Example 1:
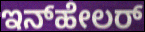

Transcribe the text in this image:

ಇನ್‌ಹೇಲರ್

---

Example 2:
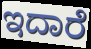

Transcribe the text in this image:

ಇದಾರೆ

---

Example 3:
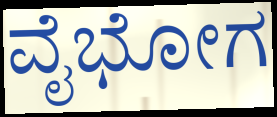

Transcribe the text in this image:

ವೈಭೋಗ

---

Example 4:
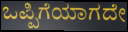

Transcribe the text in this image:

ಒಪ್ಪಿಗೆಯಾಗದೇ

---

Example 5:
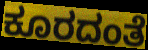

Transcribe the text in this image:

ಕೂರದಂತೆ